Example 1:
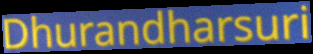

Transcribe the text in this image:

Dhurandharsuri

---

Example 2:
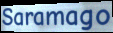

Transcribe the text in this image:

Saramago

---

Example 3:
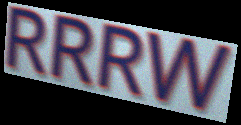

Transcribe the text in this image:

RRRW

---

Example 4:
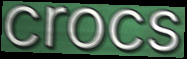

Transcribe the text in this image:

crocs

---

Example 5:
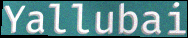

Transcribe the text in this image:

Yallubai